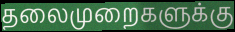
தலைமுறைகளுக்கு